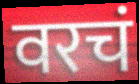
वरचं